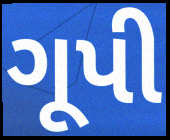
ગૂપી